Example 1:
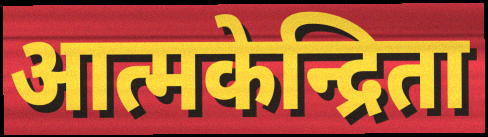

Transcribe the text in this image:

आत्मकेन्द्रिता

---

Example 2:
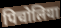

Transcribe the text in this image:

पिचोलिया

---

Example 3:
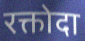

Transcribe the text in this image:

रक्तोदा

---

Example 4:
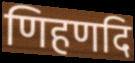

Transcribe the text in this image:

णिहणदि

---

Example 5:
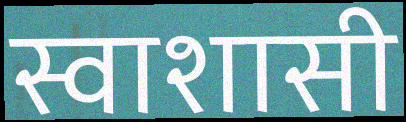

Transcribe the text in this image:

स्वाशासी